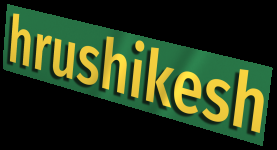
hrushikesh